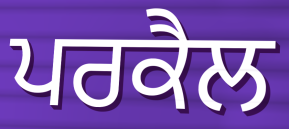
ਪਰਕੈਲ